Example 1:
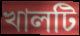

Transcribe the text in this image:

খালটি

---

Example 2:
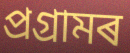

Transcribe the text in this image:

প্ৰগ্ৰামৰ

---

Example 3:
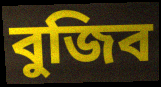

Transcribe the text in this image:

বুজিব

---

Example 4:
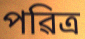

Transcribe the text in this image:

পৱিত্ৰ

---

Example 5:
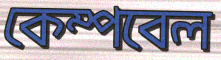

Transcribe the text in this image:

কেম্পবেল